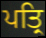
ਪਤ੍ਰਿ